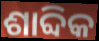
ଶାବ୍ଦିକ